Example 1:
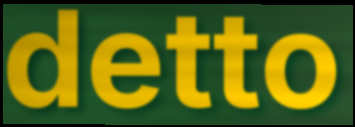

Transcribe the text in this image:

detto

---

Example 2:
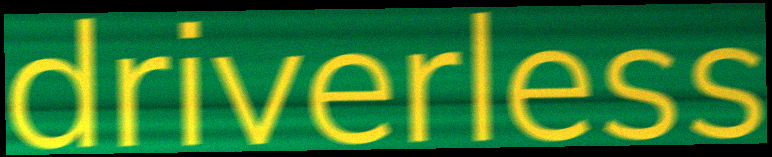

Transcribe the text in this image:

driverless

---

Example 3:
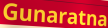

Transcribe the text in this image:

Gunaratna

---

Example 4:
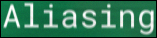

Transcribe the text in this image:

Aliasing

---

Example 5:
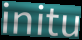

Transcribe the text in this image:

initu